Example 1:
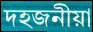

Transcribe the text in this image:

দহজনীয়া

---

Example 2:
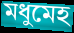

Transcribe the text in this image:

মধুমেহ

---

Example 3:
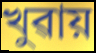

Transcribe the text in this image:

খুৱায়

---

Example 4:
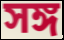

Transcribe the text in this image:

সঙ্গ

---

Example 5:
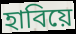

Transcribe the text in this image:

হাবিয়ে